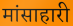
मांसाहारी